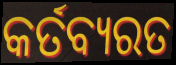
କର୍ତବ୍ୟରତ